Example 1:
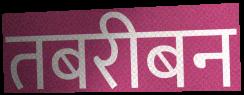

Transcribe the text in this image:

तबरीबन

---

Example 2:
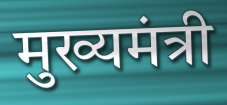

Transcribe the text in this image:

मुख्‍यमंत्री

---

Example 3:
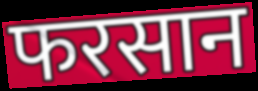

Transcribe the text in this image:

फरसान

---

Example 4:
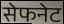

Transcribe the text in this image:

सेफनेट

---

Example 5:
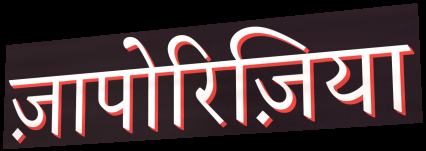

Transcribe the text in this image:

ज़ापोरिज़िया